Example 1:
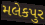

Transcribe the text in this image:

મલેકપુર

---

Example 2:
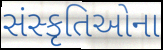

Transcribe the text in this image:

સંસ્કૃતિઓના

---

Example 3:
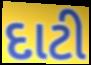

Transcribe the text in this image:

દાટી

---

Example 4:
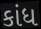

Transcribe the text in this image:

કાંધ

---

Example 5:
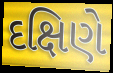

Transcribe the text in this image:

દક્ષિણે